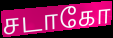
சடாகோ